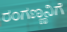
ರಂಗಣ್ಣನಿಗೆ